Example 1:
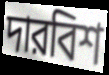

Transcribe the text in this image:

দারবিশ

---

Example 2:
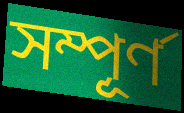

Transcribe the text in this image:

সম্পূর্ণ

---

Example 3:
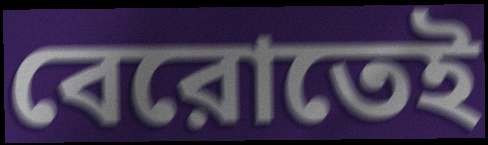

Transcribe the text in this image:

বেরোতেই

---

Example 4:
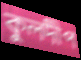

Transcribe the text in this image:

কুলদীপ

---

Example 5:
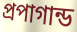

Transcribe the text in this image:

প্রপাগান্ড